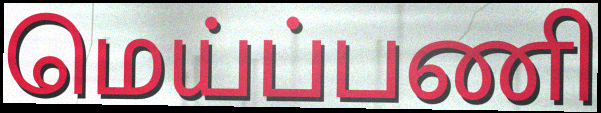
மெய்ப்பணி